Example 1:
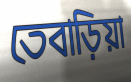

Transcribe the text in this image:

তেবাড়িয়া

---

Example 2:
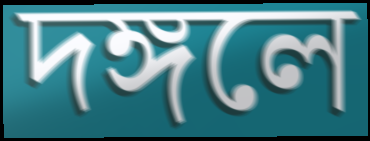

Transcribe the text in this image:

দঙ্গলে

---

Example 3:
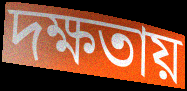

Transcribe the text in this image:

দক্ষতায়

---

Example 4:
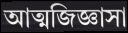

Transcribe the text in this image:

আত্মজিজ্ঞাসা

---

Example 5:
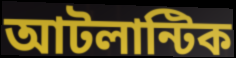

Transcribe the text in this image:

আটলান্টিক